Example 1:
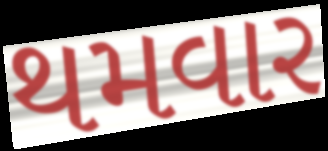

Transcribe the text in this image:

થમવાર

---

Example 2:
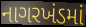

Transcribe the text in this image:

નાગરખંડમાં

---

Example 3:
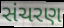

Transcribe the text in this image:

સંચરણ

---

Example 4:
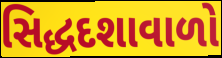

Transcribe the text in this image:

સિદ્ધદશાવાળો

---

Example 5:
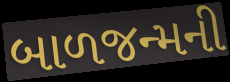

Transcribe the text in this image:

બાળજન્મની